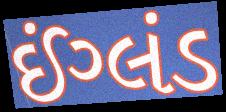
ઈંગ્લંડ